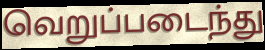
வெறுப்படைந்து